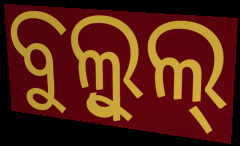
ବୁଲ୍ବୁଲ୍